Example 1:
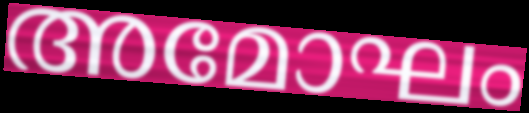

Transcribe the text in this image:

അമോഘം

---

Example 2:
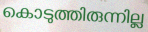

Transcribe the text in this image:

കൊടുത്തിരുന്നില്ല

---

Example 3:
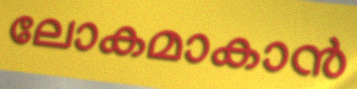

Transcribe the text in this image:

ലോകമാകാൻ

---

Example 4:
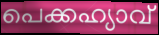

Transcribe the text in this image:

പെക്കഹ്യാവ്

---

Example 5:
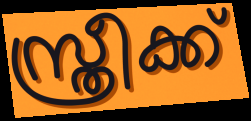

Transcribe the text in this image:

സ്ത്രീക്ക്